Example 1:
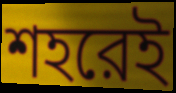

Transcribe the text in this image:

শহরেই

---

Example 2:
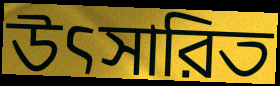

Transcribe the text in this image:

উৎসারিত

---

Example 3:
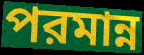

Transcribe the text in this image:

পরমান্ন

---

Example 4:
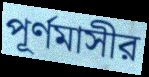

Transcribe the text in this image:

পূর্ণমাসীর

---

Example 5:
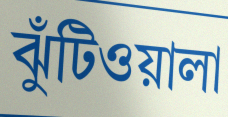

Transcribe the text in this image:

ঝুঁটিওয়ালা